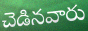
చెడినవారు